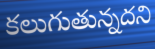
కలుగుతున్నదని